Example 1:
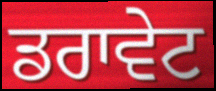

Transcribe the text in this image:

ਡਰਾਵੇਟ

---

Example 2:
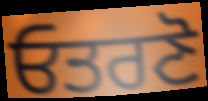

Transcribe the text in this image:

ਓਤਰਣੋ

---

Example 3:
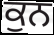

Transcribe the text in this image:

ਕੁਨ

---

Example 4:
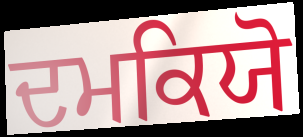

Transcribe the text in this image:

ਦਮਕਿਯੋ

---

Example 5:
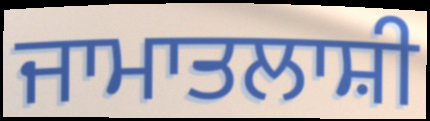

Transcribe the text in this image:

ਜਾਮਾਤਲਾਸ਼ੀ